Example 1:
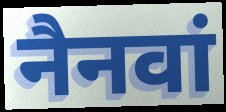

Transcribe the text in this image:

नैनवां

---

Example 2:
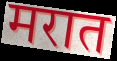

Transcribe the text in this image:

मरात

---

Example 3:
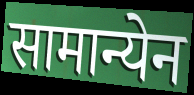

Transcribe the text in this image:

सामान्येन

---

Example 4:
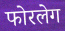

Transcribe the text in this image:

फोरलेग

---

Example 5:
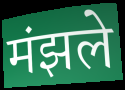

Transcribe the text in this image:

मंझले